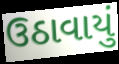
ઉઠાવાયું